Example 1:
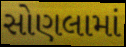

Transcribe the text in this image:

સોણલામાં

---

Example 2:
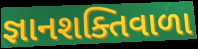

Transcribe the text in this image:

જ્ઞાનશક્તિવાળા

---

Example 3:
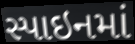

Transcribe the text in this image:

સ્પાઇનમાં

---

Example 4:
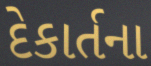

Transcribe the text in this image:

દેકાર્તના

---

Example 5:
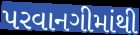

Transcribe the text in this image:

પરવાનગીમાંથી